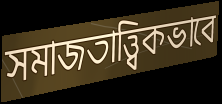
সমাজতাত্ত্বিকভাবে